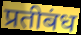
प्रतीबंध